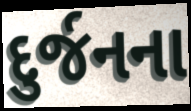
દુર્જનના